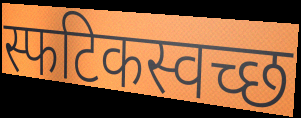
स्फटिकस्वच्छ